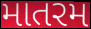
માતરમ